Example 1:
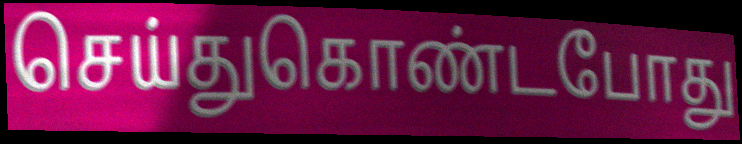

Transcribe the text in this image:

செய்துகொண்டபோது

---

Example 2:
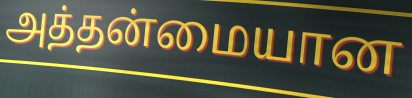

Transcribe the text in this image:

அத்தன்மையான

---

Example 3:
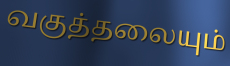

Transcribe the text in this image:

வகுத்தலையும்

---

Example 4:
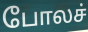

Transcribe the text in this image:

போலச்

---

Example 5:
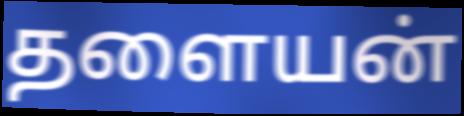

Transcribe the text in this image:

தளையன்